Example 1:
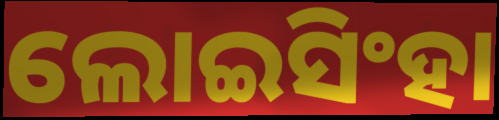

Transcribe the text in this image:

ଲୋଇସିଂହା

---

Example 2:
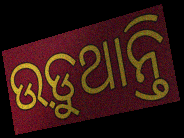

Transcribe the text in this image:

ଉଡ଼ୁଥାନ୍ତି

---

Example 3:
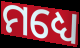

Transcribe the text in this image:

ମଧ୍ୟେ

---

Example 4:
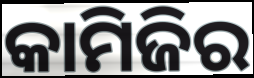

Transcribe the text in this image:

କାମିଜିର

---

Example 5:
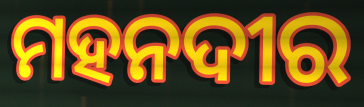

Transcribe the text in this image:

ମହନଦୀର